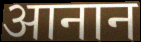
आनान